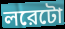
লরেটো